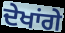
ਦੇਖਾਂਗੇ